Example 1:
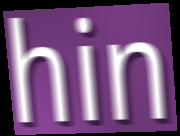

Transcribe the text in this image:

hin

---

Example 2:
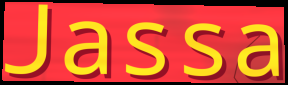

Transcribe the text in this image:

Jassa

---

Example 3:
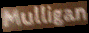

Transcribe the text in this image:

Mulligan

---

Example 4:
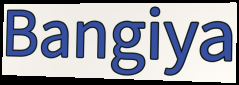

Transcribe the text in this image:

Bangiya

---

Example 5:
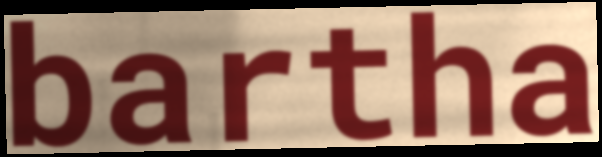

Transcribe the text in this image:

bartha